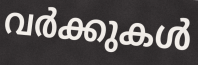
വർക്കുകൾ